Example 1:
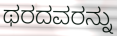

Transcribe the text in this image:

ಥರದವರನ್ನು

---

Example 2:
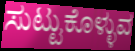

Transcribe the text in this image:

ಸುಟ್ಟುಕೊಳ್ಳುವ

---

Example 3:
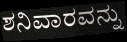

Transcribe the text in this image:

ಶನಿವಾರವನ್ನು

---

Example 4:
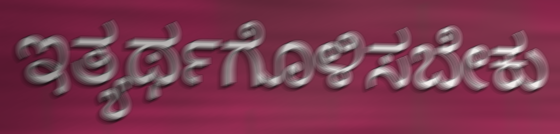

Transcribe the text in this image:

ಇತ್ಯರ್ಥಗೊಳಿಸಬೇಕು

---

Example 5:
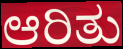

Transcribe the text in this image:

ಆರಿತು